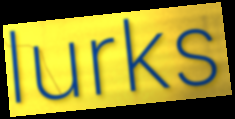
lurks